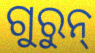
ଗୁରୁନ୍